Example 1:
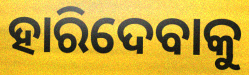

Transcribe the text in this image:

ହାରିଦେବାକୁ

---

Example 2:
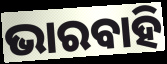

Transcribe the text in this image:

ଭାରବାହି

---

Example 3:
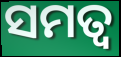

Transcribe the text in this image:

ସମତ୍ଵ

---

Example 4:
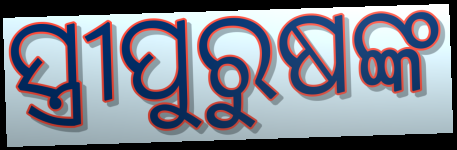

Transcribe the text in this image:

ସ୍ତ୍ରୀପୁରୁଷଙ୍କ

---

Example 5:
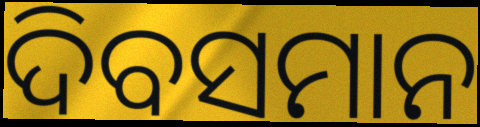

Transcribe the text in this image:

ଦିବସମାନ